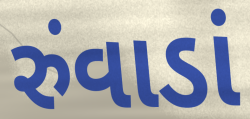
રુંવાડાં